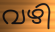
വഴി